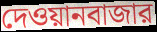
দেওয়ানবাজার